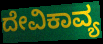
ದೇವಿಕಾವ್ಯ